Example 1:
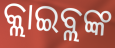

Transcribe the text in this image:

କ୍ଲାଇବ୍ଲଙ୍କ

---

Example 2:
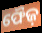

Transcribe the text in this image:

ଫୈଜ଼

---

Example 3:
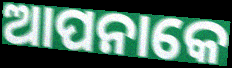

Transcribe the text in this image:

ଆପନାକେ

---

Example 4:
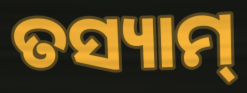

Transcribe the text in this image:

ତସ୍ୟାମ୍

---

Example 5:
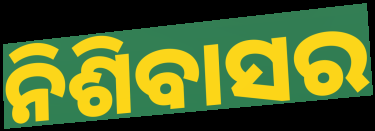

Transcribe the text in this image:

ନିଶିବାସର